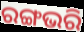
ରଙ୍ଗଭରି